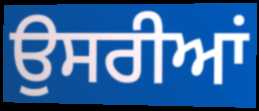
ਉਸਰੀਆਂ